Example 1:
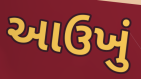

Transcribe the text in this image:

આઉખું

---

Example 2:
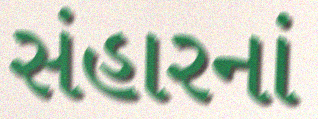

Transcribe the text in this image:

સંહારનાં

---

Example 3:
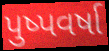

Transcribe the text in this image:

પુષ્પવર્ષા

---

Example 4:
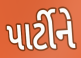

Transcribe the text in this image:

પાર્ટીને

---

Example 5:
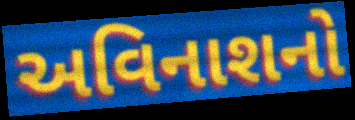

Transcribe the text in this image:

અવિનાશનો